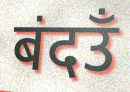
बंदउँ